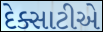
દેક્સાટીએ